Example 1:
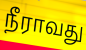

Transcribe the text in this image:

நீராவது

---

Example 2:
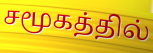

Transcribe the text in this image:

சமூகத்தில்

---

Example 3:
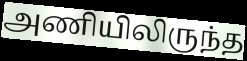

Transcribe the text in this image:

அணியிலிருந்த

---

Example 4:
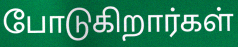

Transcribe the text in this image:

போடுகிறார்கள்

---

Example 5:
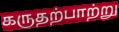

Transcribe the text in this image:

கருதற்பாற்று